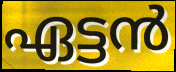
ഏട്ടൻ